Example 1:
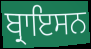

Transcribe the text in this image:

ਬ੍ਰਾਇਸਨ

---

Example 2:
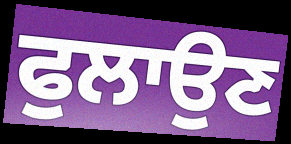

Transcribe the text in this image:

ਫੁਲਾਉਣ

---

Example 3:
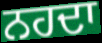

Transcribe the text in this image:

ਨਹਦਾ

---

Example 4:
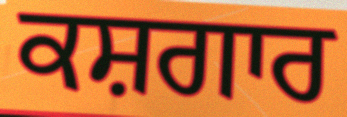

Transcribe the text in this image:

ਕਸ਼ਗਾਰ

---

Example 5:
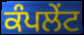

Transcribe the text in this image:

ਕੰਪਲੇਂਟ